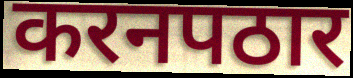
करनपठार